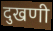
दुखणी